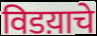
विडय़ाचे